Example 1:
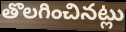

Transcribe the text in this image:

తొలగించినట్లు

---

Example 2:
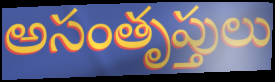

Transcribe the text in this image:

అసంతృప్తులు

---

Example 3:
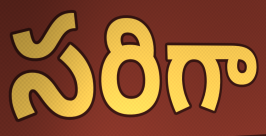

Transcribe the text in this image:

సరిగా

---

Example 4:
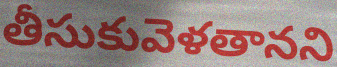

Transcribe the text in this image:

తీసుకువెళతానని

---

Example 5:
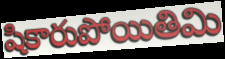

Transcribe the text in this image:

షికారుపోయితిమి